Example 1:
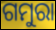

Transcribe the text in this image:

ଗମୁରା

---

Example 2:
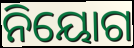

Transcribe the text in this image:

ନିୟୋଗ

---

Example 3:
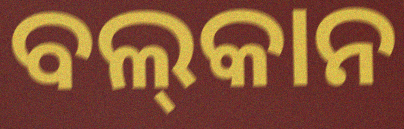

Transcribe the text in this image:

ବଲ୍‌କାନ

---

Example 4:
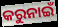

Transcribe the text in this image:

କରୁନାଇଁ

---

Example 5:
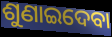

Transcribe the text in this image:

ଶୁଣାଇଦେବା